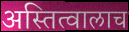
अस्तित्वालाच